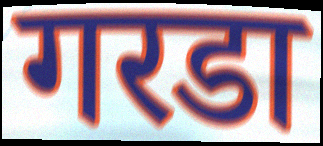
गरडा